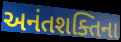
અનંતશક્તિના